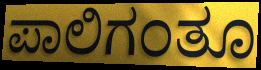
ಪಾಲಿಗಂತೂ